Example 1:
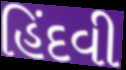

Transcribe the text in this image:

હિંદવી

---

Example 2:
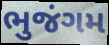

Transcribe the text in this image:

ભુજંગમ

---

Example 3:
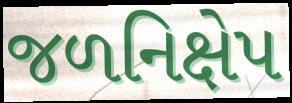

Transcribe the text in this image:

જળનિક્ષેપ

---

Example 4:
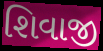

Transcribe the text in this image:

શિવાજી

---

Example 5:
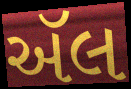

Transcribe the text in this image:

ઍલ